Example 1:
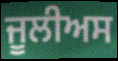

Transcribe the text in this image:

ਜੂਲੀਅਸ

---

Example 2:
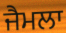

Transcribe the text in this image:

ਜੈਮਲਾ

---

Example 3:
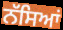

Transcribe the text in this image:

ਨੱਸਿਆਂ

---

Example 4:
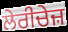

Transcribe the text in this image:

ਲੇਰੀਚੇਜ਼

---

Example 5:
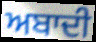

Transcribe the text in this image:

ਅਬਾਦੀ